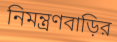
নিমন্ত্রণবাড়ির